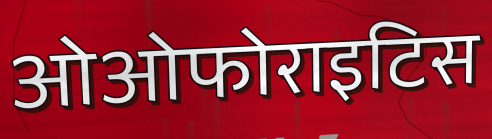
ओओफोराइटिस